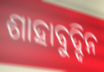
ଶାହାବୁଦ୍ଦିନ